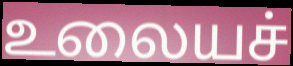
உலையச்